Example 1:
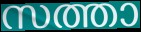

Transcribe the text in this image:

സത്താ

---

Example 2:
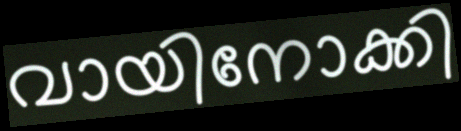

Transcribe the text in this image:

വായിനോക്കി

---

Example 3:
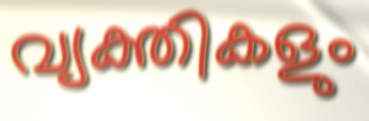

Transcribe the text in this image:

വ്യക്തികളും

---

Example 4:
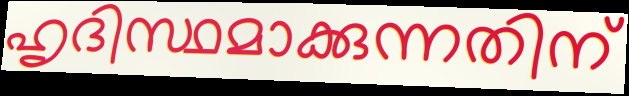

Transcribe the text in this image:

ഹൃദിസ്ഥമാക്കുന്നതിന്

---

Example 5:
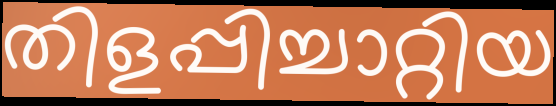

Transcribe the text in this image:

തിളപ്പിച്ചാറ്റിയ